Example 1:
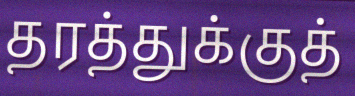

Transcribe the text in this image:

தரத்துக்குத்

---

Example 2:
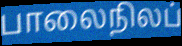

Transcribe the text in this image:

பாலைநிலப்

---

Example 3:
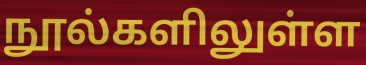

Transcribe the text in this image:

நூல்களிலுள்ள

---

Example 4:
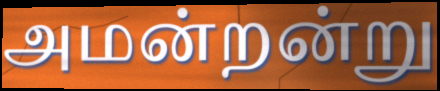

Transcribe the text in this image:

அமன்றன்று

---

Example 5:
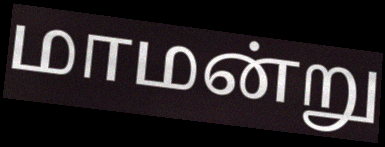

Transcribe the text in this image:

மாமன்று